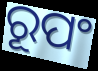
ରୂପଂ